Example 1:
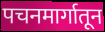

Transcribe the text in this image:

पचनमार्गातून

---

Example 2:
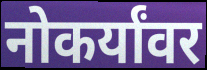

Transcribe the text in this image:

नोकर्यांवर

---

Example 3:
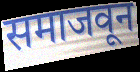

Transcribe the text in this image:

समाजवून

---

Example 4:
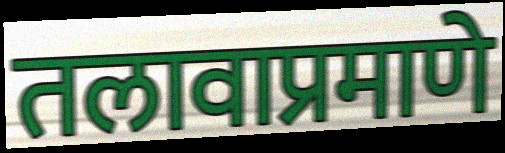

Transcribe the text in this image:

तलावाप्रमाणे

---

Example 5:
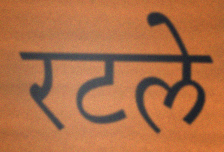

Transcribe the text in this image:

रटले